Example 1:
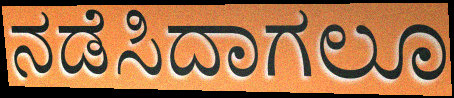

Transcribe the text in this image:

ನಡೆಸಿದಾಗಲೂ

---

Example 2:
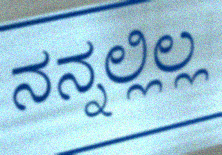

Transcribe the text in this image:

ನನ್ನಲ್ಲಿಲ್ಲ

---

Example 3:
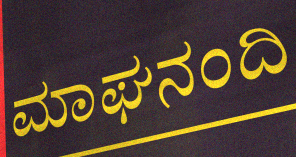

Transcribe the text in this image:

ಮಾಘನಂದಿ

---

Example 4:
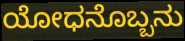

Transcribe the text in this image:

ಯೋಧನೊಬ್ಬನು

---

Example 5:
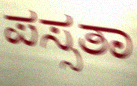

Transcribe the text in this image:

ಪಸ್ಸತಾ